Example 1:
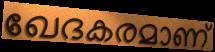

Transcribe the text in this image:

ഖേദകരമാണ്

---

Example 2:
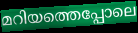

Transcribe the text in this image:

മറിയത്തെപ്പോലെ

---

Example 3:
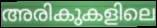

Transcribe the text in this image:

അരികുകളിലെ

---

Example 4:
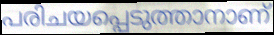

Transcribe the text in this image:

പരിചയപ്പെടുത്താനാണ്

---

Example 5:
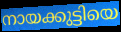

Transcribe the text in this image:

നായക്കുട്ടിയെ